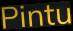
Pintu